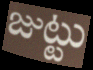
జుట్టు